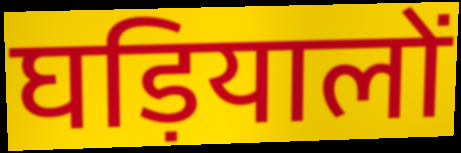
घड़ियालों